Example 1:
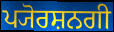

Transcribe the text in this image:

ਪ੍ਯੋਰਸ਼ਨਗੀ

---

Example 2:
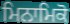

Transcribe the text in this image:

ਮਿਨਾਮਿਕੋ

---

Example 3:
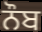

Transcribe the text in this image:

ਨੌਬ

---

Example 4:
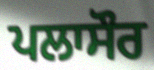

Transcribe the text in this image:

ਪਲਾਸੌਰ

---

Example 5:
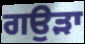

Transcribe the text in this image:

ਗਉੜਾ